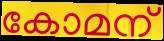
കോമന്